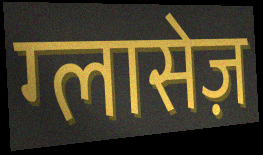
ग्लासेज़